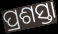
ପ୍ରଶସ୍ତା